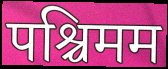
पश्चिमम